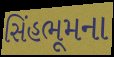
સિંહભૂમના